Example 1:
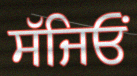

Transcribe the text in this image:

ਸੱਜਿਓਂ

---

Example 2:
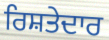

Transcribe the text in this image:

ਰਿਸ਼ਤੇਦਾਰ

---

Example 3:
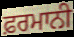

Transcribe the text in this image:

ਫ਼ਰਮਾਨੀ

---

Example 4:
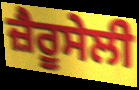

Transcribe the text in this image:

ਜ਼ੈਰੂਸੇਲੀ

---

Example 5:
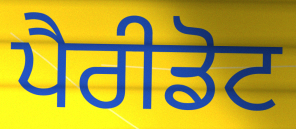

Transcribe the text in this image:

ਪੈਰੀਡੋਟ